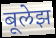
बूलेझ